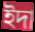
ইদা